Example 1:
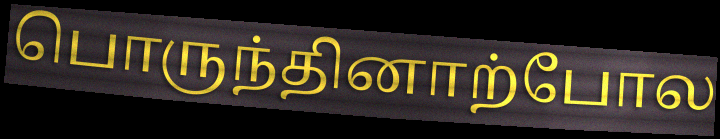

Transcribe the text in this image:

பொருந்தினாற்போல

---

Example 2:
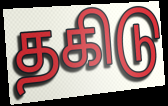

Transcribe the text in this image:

தகிடு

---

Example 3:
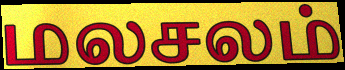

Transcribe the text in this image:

மலசலம்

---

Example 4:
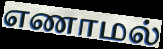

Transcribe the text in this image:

எணாமல்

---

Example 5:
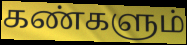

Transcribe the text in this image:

கண்களும்